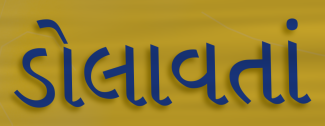
ડોલાવતાં